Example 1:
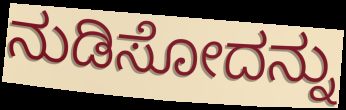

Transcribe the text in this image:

ನುಡಿಸೋದನ್ನು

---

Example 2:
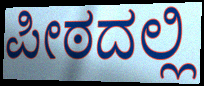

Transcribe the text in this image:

ಪೀಠದಲ್ಲಿ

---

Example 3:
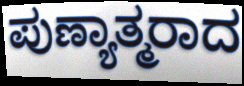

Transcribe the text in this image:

ಪುಣ್ಯಾತ್ಮರಾದ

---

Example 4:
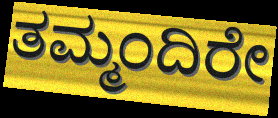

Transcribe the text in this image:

ತಮ್ಮಂದಿರೇ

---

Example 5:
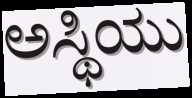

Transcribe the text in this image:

ಅಸ್ಥಿಯು